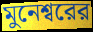
মুনেশ্বরের